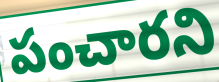
పంచారని